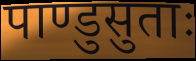
पाण्डुसुताः